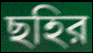
ছহির